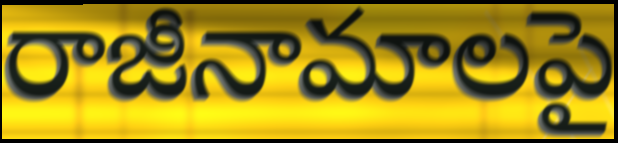
రాజీనామాలపై